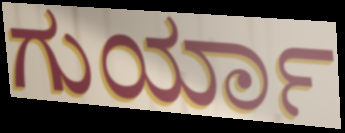
ಗುರ್ಯಾ